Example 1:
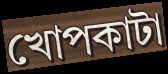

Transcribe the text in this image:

খোপকাটা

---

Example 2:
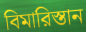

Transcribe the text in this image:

বিমারিস্তান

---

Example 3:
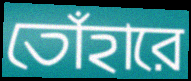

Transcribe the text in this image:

তোঁহারে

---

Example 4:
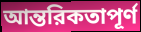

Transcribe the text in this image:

আন্তরিকতাপূর্ণ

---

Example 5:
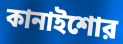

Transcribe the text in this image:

কানাইশোর